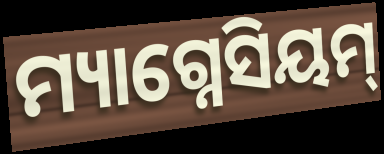
ମ୍ୟାଗ୍ନେସିୟମ୍